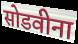
सोडवीना